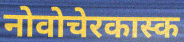
नोवोचेरकास्क